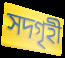
সদগৃহী